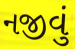
નજીવું